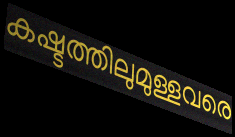
കഷ്ടത്തിലുമുള്ളവരെ